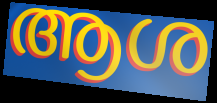
ആശ